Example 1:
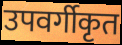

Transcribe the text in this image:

उपवर्गीकृत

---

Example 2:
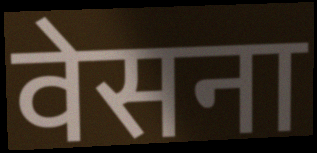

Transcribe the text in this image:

वेसना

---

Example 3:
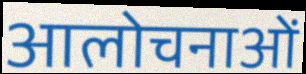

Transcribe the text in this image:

आलोचनाओं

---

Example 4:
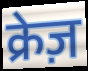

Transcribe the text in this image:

क्रेज़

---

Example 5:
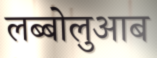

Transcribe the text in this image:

लब्बोलुआब